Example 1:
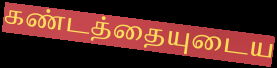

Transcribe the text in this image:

கண்டத்தையுடைய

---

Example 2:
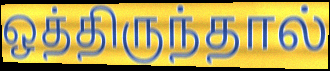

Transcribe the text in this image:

ஒத்திருந்தால்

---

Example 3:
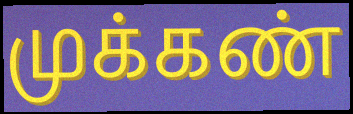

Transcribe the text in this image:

முக்கண்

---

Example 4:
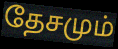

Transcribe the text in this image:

தேசமும்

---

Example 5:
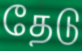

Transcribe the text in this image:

தேடு